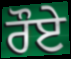
ਰੌਏ